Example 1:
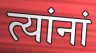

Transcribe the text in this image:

त्यांनां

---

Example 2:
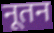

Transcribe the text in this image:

नूतन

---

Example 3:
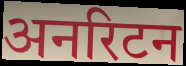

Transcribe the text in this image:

अनरिटन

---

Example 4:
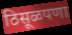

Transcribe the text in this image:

ठिसूळपणा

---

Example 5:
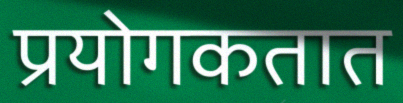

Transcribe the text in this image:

प्रयोगकतात